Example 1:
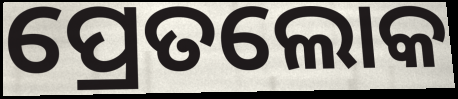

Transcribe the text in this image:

ପ୍ରେତଲୋକ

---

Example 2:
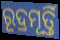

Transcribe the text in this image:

ରୂଦ୍ରମୂର୍ତ୍ତି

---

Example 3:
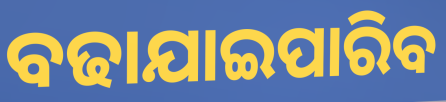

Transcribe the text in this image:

ବଢାଯାଇପାରିବ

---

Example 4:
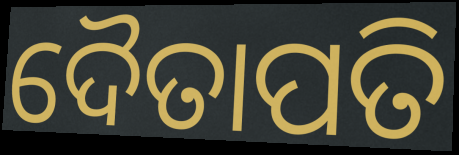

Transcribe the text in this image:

ଦୈତାପତି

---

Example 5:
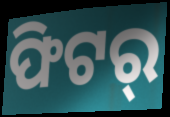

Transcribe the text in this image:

ଫିଟର୍